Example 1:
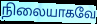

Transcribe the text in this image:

நிலையாகவே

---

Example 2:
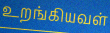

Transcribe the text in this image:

உறங்கியவள்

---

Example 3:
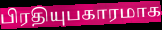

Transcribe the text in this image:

பிரதியுபகாரமாக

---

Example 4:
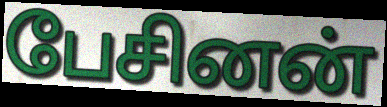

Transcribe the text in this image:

பேசினன்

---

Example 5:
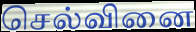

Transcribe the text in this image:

செல்வினை